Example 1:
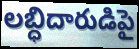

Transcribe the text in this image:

లబ్ధిదారుడిపై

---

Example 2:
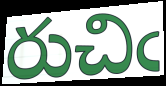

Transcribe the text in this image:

రుచిఁ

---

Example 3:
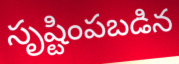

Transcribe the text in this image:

సృష్టింపబడిన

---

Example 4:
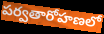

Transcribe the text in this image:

పర్వతారోహణలో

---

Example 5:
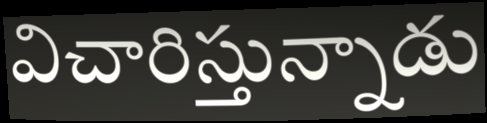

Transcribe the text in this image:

విచారిస్తున్నాడు